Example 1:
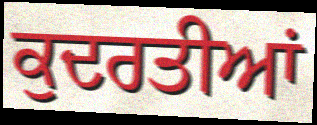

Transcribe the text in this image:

ਕੁਦਰਤੀਆਂ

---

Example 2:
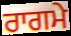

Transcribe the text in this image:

ਰਾਗਮੇ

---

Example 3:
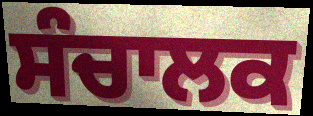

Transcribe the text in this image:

ਸੰਚਾਲਕ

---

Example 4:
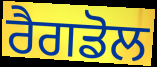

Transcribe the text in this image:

ਰੈਗਡੋਲ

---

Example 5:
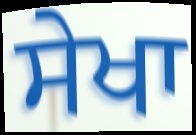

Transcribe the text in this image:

ਸੇਖਾ